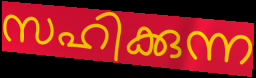
സഹിക്കുന്ന